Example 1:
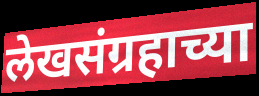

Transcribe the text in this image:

लेखसंग्रहाच्या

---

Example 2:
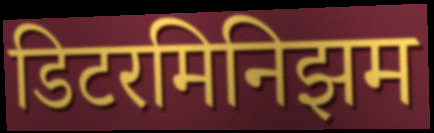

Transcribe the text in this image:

डिटरमिनिझम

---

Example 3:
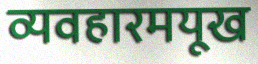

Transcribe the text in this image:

व्यवहारमयूख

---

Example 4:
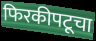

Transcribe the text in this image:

फिरकीपटूचा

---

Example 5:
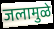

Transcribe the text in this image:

जलामुळे